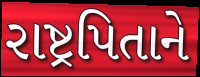
રાષ્ટ્રપિતાને